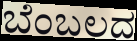
ಬೆಂಬಲದ